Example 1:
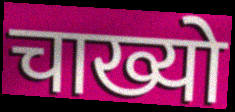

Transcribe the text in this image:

चाख्यो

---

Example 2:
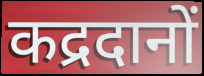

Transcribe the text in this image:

कद्रदानों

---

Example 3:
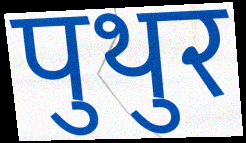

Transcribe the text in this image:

पुथुर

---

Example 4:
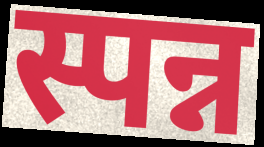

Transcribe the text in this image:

स्पन्न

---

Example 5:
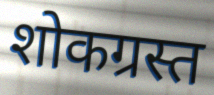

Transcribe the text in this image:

शोकग्रस्त